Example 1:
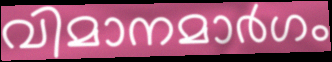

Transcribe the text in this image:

വിമാനമാർഗം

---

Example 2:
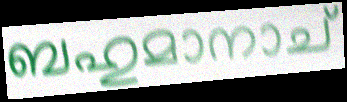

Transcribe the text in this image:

ബഹുമാനാച്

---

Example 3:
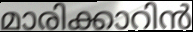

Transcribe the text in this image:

മാരിക്കാറിൻ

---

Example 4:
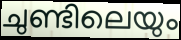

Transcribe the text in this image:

ചുണ്ടിലെയും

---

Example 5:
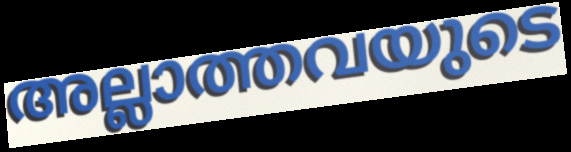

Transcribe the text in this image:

അല്ലാത്തവയുടെ